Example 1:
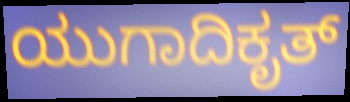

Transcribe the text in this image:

ಯುಗಾದಿಕೃತ್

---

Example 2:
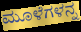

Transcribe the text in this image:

ಮೂಳೆಗಳನ್ನ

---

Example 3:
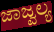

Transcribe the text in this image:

ಜಾಜ್ವಲ್ಯ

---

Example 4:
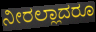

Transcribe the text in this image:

ನೀರಲ್ಲಾದರೂ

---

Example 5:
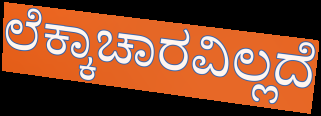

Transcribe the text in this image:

ಲೆಕ್ಕಾಚಾರವಿಲ್ಲದೆ